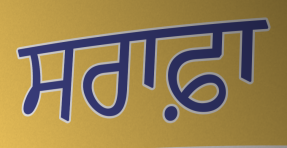
ਸਰਾਫ਼ਾ